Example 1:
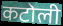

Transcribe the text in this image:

कटोली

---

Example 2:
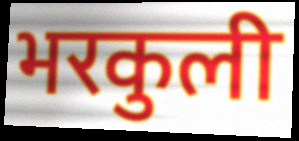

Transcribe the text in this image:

भरकुली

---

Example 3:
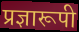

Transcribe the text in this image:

प्रज्ञारूपी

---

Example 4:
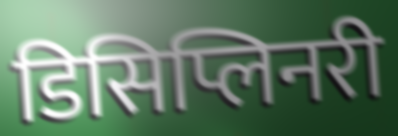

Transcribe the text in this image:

डिसिप्लिनरी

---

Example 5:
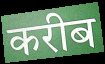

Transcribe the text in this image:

करीब